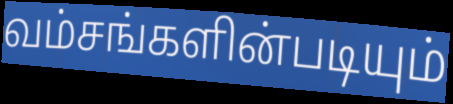
வம்சங்களின்படியும்